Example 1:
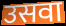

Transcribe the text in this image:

उसवा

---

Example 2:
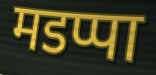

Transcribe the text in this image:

मडप्पा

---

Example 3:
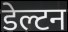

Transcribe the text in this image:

डेल्टन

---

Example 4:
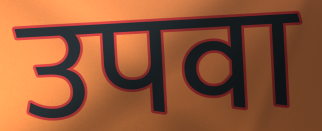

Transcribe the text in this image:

उपवा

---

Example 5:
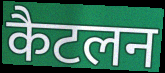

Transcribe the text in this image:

कैटलन